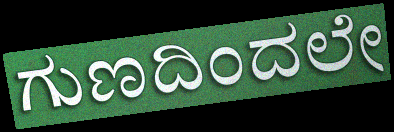
ಗುಣದಿಂದಲೇ